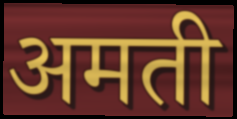
अमती